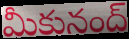
మీకునంద్